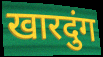
खारदुंग